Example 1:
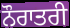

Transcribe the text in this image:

ਨੌਰਾਤਰੀ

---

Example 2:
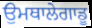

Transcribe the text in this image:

ਉਮਥਾਲੇਗਾਡੂ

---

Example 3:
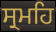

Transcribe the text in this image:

ਸ੍ਰਮਹਿ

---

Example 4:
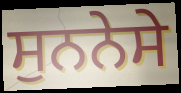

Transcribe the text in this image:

ਸੁਨਨੇਸੇ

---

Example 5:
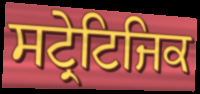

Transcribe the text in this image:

ਸਟ੍ਰੇਟਿਜਿਕ